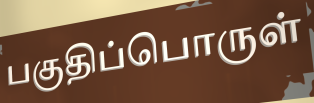
பகுதிப்பொருள்